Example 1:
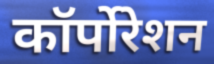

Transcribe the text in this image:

कॉर्पोरेशन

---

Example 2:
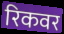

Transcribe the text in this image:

रिकवर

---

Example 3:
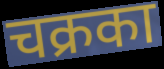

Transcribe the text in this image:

चक्रका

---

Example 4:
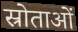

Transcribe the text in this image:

स्रोताओं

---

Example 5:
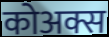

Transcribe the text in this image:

कोअक्स